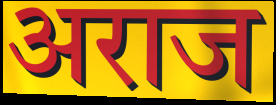
अराज